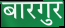
बारगुर